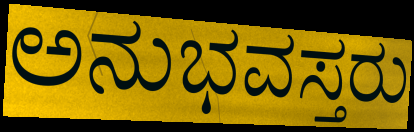
ಅನುಭವಸ್ತರು